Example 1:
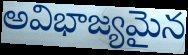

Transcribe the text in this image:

అవిభాజ్యమైన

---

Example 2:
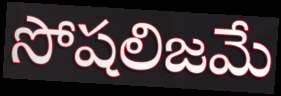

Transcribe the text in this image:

సోషలిజమే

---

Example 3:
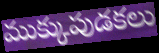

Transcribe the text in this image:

ముక్కుపుడకలు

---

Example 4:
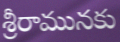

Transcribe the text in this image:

శ్రీరామునకు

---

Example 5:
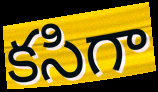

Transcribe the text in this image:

కసిగా